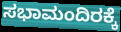
ಸಭಾಮಂದಿರಕ್ಕೆ